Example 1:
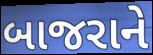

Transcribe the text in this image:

બાજરાને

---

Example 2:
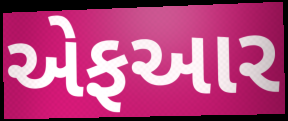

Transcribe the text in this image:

એફઆર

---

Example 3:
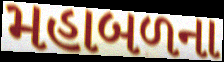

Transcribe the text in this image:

મહાબળના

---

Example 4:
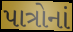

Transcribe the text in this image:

પાત્રોનાં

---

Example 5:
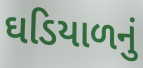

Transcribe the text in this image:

ઘડિયાળનું